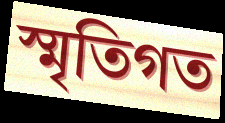
স্মৃতিগত